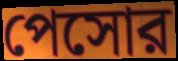
পেসোর